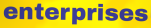
enterprises